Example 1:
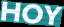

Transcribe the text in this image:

HOY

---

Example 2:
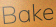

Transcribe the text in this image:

Bake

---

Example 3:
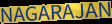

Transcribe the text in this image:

NAGARAJAN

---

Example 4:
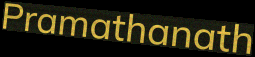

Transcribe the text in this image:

Pramathanath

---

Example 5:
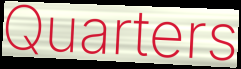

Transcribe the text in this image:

Quarters